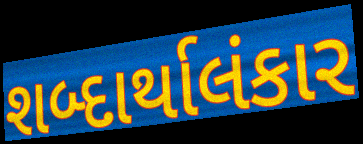
શબ્દાર્થાલંકાર